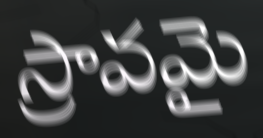
స్రావమై